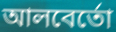
আলবের্তো